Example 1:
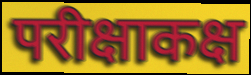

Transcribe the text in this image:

परीक्षाकक्ष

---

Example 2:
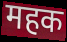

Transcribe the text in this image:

महक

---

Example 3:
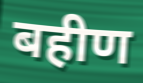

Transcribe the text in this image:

बहीण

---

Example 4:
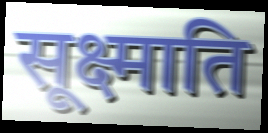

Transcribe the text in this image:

सूक्ष्माति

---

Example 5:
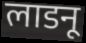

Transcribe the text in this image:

लाडनू